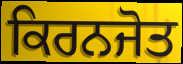
ਕਿਰਨਜੋਤ